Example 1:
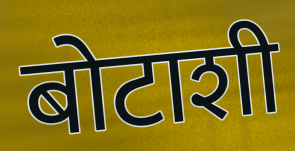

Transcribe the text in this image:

बोटाशी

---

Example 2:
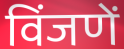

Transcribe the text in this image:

विंजणें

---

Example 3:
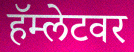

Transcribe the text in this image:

हॅम्लेटवर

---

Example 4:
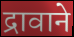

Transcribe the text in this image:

द्रावाने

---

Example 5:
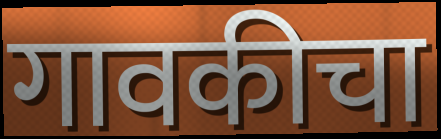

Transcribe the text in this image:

गावकीचा